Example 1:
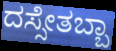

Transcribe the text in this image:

ದಸ್ಸೇತಬ್ಬಾ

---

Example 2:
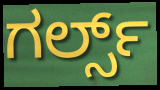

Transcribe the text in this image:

ಗರ್ಲ್ಸ್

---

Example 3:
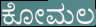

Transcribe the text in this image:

ಕೋಮಲ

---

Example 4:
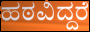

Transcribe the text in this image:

ಹಠವಿದ್ದರೆ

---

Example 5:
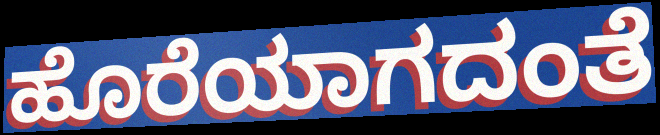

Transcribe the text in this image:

ಹೊರೆಯಾಗದಂತೆ